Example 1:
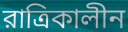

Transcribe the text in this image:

রাত্রিকালীন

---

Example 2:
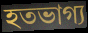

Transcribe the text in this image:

হতভাগ্য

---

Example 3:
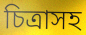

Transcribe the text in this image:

চিত্রাসহ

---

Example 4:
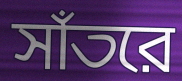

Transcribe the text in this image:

সাঁতরে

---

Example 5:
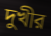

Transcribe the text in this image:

দুখীর